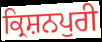
ਕ੍ਰਿਸ਼ਨਪੁਰੀ